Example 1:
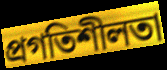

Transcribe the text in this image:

প্রগতিশীলতা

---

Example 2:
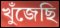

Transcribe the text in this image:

খুঁজেছি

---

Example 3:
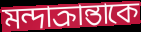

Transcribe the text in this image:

মন্দাক্রান্তাকে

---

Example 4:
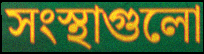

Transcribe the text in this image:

সংস্থাগুলো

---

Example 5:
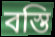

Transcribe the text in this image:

বস্তি